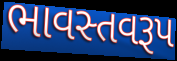
ભાવસ્તવરૂપ